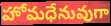
హోమధేనువుగా